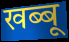
खब्बू